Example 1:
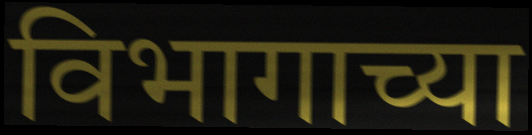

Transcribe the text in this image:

विभागाच्या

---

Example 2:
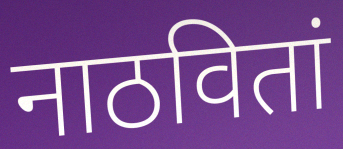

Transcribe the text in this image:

नाठवितां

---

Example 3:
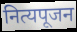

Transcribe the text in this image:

नित्यपूजन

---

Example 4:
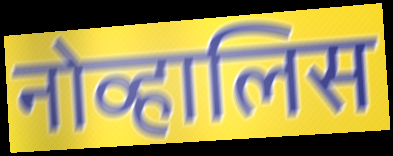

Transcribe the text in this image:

नोव्हालिस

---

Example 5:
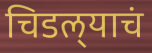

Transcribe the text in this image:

चिडल्याचं